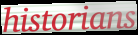
historians